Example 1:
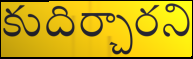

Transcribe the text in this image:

కుదిర్చారని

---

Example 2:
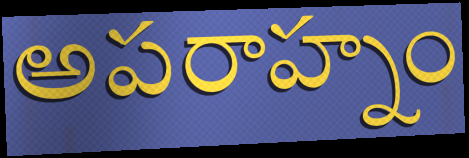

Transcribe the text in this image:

అపరాహ్నం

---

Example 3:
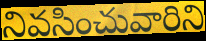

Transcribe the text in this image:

నివసించువారిని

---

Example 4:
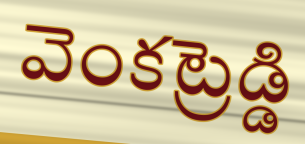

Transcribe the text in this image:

వెంకట్రెడ్డి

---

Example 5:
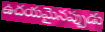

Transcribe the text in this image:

ఉదయమైనప్పుడు